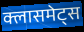
क्लासमेट्स